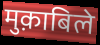
मुक़ाबिले